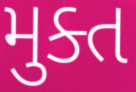
મુક્ત